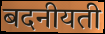
बदनीयती